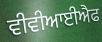
ਵੀਵੀਆਈਐਫ